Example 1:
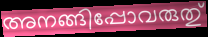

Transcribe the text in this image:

അനങ്ങിപ്പോവരുതു്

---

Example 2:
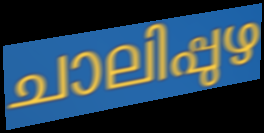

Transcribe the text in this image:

ചാലിപ്പുഴ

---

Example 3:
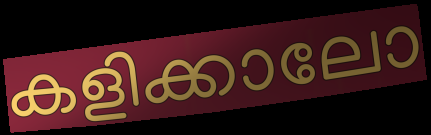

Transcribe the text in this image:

കളിക്കാലോ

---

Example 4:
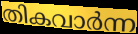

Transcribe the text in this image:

തികവാർന്ന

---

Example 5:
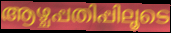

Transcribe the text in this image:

ആഴ്ചപ്പതിപ്പിലൂടെ